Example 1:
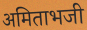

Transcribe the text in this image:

अमिताभजी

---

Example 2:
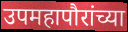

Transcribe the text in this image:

उपमहापौरांच्या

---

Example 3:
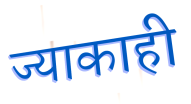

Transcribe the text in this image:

ज्याकाही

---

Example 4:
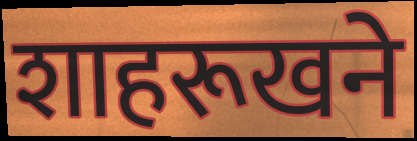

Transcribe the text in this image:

शाहरूखने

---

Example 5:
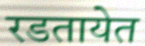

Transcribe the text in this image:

रडतायेत